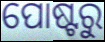
ପୋଷ୍ଟରୁ